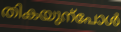
തികയുന്പോൾ